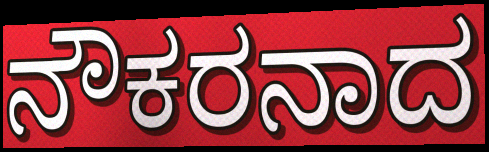
ನೌಕರನಾದ